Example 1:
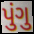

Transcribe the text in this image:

પુંગુ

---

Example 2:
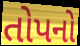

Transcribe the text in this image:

તોપનો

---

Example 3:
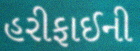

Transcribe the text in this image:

હરીફાઈની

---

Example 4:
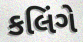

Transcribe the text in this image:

કલિંગે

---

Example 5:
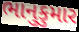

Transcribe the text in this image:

ભાનુકુમાર